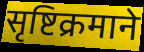
सृष्टिक्रमाने